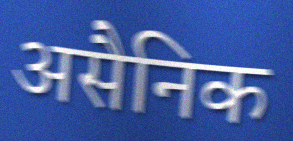
असैनिक